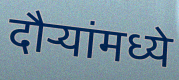
दौऱ्यांमध्ये